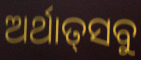
ଅର୍ଥାତ୍‌ସବୁ